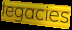
legacies